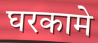
घरकामे